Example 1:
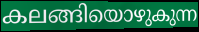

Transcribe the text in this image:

കലങ്ങിയൊഴുകുന്ന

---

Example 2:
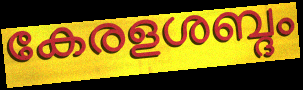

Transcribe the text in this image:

കേരളശബ്ദം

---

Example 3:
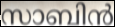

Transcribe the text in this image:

സാബിൻ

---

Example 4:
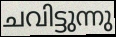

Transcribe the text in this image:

ചവിട്ടുന്നു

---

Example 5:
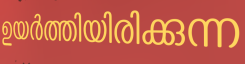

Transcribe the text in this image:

ഉയർത്തിയിരിക്കുന്ന